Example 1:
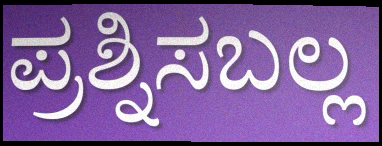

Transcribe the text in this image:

ಪ್ರಶ್ನಿಸಬಲ್ಲ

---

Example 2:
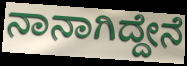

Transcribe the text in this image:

ನಾನಾಗಿದ್ದೇನೆ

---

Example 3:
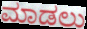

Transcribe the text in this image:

ಮಾಡಲು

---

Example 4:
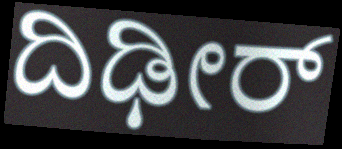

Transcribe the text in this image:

ದಿಢೀರ್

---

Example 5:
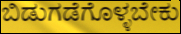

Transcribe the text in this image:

ಬಿಡುಗಡೆಗೊಳ್ಳಬೇಕು